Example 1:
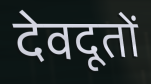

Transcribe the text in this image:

देवदूतों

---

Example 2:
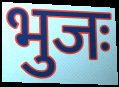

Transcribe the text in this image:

भुजः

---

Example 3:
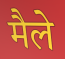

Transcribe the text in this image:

मैले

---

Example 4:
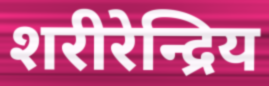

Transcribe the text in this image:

शरीरेन्द्रिय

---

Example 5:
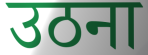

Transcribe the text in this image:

उठना